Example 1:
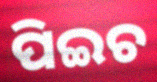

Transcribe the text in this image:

ପିଇଚ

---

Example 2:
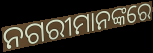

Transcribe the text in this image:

ନଗରୀମାନଙ୍କରେ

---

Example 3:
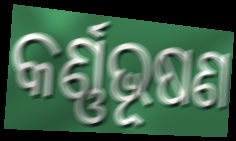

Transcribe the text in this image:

କର୍ଣ୍ଣଭୂଷଣ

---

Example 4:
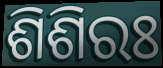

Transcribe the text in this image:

ଶିଶିରଃ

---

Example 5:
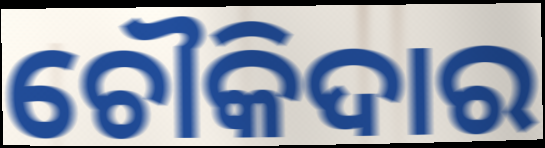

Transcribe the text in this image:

ଚୌକିଦାର